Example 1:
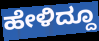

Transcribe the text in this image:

ಹೇಳಿದ್ದೂ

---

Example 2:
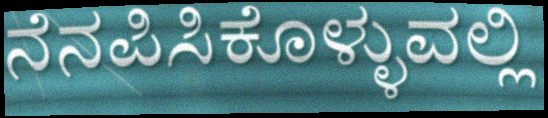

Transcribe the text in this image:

ನೆನಪಿಸಿಕೊಳ್ಳುವಲ್ಲಿ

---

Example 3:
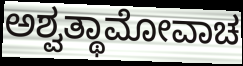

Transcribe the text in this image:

ಅಶ್ವತ್ಥಾಮೋವಾಚ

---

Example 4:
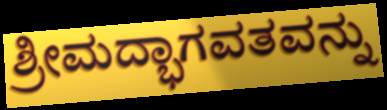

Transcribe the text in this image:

ಶ್ರೀಮದ್ಭಾಗವತವನ್ನು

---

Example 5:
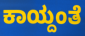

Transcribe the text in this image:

ಕಾಯ್ದಂತೆ